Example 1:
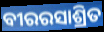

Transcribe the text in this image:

ବୀରରସାଶ୍ରିତ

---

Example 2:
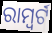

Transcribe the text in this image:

ରାମ୍ବର୍ଟ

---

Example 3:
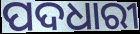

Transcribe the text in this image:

ପଦଧାରୀ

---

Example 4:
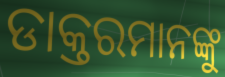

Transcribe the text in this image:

ଡାକ୍ତରମାନଙ୍କୁ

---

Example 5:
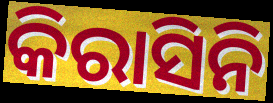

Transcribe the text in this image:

କିରାସିନି